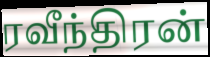
ரவீந்திரன்